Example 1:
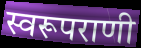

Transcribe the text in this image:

स्वरूपराणी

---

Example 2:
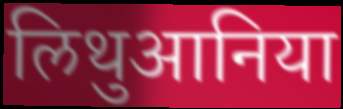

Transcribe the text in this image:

लिथुआनिया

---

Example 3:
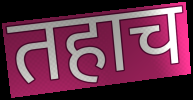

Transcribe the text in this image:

तहाच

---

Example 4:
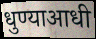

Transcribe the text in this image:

धुण्याआधी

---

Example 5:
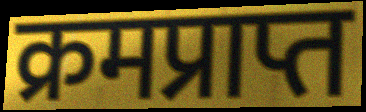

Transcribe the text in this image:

क्रमप्राप्त